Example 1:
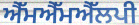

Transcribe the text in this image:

ਐੱਮਐੱਮਐੱਲਪੀ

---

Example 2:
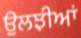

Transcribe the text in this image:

ਉਲਝੀਆਂ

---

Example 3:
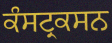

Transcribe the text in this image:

ਕੰਸਟ੍ਰਕਸਨ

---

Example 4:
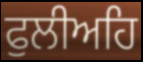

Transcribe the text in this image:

ਫੁਲੀਅਹਿ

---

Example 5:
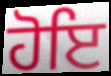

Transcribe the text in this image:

ਹੋਇ